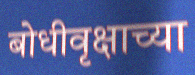
बोधीवृक्षाच्या